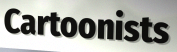
Cartoonists